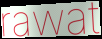
rawat